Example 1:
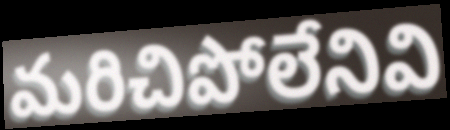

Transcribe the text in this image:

మరిచిపోలేనివి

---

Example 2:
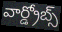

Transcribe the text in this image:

వార్డ్రోబ్స్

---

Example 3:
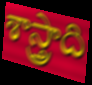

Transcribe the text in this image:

శాస్త్రాది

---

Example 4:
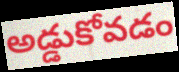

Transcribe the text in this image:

అడ్డుకోవడం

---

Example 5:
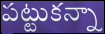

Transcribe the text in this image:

పట్టుకన్నా